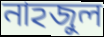
নাহজুল